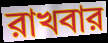
রাখবার